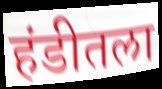
हंडीतला